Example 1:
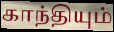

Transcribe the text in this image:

காந்தியும்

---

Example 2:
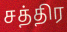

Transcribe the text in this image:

சத்திர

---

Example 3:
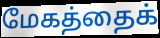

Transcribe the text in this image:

மேகத்தைக்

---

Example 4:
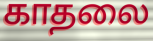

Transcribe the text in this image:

காதலை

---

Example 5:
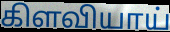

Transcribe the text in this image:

கிளவியாய்